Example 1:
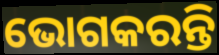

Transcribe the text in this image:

ଭୋଗକରନ୍ତି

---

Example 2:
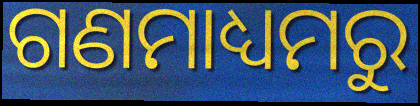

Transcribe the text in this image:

ଗଣମାଧ୍ୟମରୁ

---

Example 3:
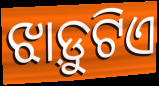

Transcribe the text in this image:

ଝାଡ଼ୁଟିଏ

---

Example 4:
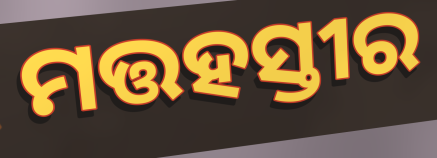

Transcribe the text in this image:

ମତ୍ତହସ୍ତୀର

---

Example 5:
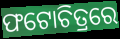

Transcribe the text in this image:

ଫଟୋଚିତ୍ରରେ